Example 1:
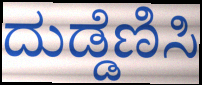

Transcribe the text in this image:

ದುಡ್ಡೆಣಿಸಿ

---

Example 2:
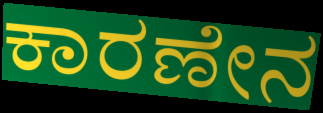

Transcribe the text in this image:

ಕಾರಣೇನ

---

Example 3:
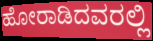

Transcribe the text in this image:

ಹೋರಾಡಿದವರಲ್ಲಿ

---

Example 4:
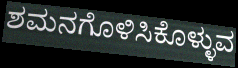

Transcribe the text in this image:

ಶಮನಗೊಳಿಸಿಕೊಳ್ಳುವ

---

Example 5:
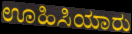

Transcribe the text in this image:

ಊಹಿಸಿಯಾರು